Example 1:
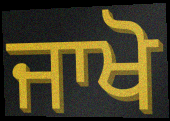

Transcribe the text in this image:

ਜਾਖੋ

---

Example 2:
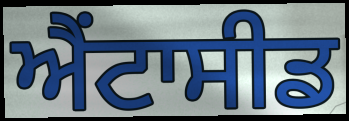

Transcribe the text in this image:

ਐਂਟਾਸੀਡ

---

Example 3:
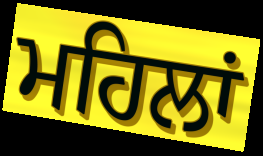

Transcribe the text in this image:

ਮਹਿਲਾਂ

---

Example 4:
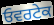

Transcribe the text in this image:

ਓਵਰਟੇਕ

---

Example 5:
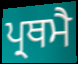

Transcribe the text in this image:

ਪ੍ਰਥਮੈ